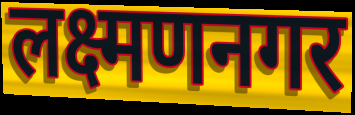
लक्ष्मणनगर